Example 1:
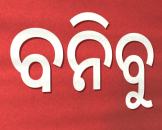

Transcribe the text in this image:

ବନିବୁ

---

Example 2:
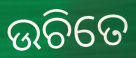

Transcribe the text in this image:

ଉଚିତେ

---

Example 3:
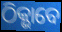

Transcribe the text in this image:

ଠିକ୍ଭାବେ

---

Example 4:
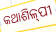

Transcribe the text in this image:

କଥାଶିଳ୍‌ପୀ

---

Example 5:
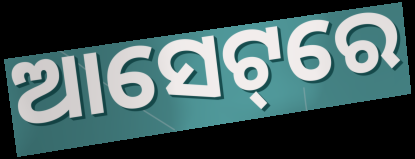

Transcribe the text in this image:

ଆସେଟ୍‌ରେ